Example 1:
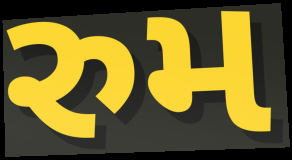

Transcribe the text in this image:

રુમ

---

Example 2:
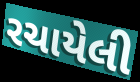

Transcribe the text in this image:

રચાયેલી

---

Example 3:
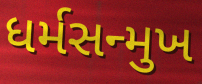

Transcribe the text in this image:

ધર્મસન્મુખ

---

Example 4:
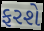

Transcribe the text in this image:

ફરશે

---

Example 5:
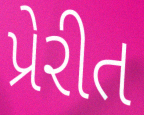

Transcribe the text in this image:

પ્રેરીત